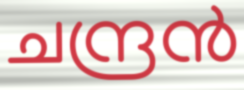
ചന്ദ്രൻ